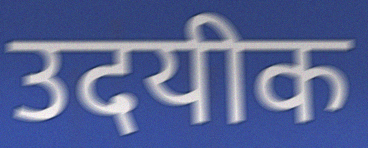
उदयीक